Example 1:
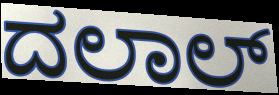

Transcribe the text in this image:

ದಲಾಲ್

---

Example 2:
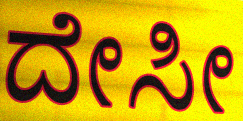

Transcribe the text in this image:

ದೇಸೀ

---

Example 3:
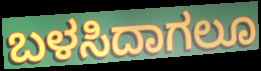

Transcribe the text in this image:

ಬಳಸಿದಾಗಲೂ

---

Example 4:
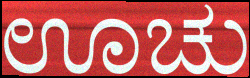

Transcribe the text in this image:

ಊಚು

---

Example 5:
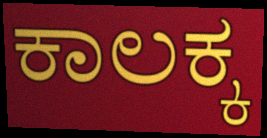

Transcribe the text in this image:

ಕಾಲಕ್ಕ